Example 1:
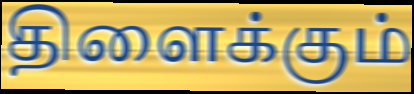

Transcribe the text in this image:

திளைக்கும்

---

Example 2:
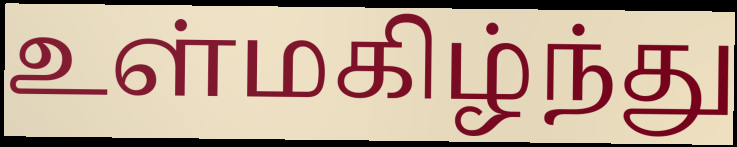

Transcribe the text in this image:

உள்மகிழ்ந்து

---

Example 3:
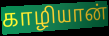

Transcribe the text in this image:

காழியான்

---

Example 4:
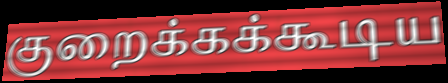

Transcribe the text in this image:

குறைக்கக்கூடிய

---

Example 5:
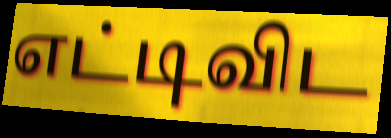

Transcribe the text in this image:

எட்டிவிட